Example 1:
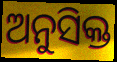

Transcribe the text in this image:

ଅନୁସିକ୍ତ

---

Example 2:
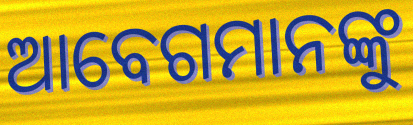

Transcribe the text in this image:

ଆବେଗମାନଙ୍କୁ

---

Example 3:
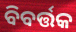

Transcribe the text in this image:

ବିବର୍ତ୍ତକ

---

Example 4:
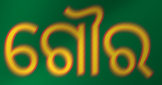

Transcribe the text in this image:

ଗୌର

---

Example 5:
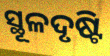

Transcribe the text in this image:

ସ୍ଥୂଳଦୃଷ୍ଟି